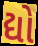
દ્યો